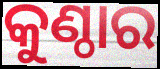
କୁଣ୍ଠାର